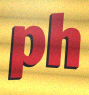
ph